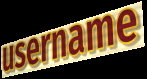
username